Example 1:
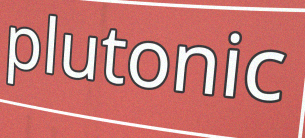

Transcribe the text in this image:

plutonic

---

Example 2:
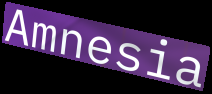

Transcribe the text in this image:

Amnesia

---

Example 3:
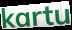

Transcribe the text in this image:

kartu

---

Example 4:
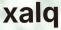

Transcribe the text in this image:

xalq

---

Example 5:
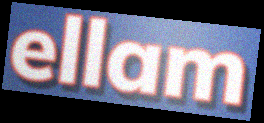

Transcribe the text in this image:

ellam